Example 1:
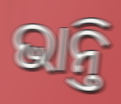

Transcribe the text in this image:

ଭାନ୍ତି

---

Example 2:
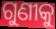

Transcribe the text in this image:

ଗୁଣୀକୁ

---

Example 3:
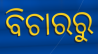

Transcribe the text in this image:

ବିଚାରରୁ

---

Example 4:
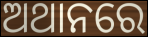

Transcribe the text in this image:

ଅଥାନରେ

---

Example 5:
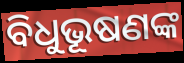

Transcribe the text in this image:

ବିଧୁଭୂଷଣଙ୍କ